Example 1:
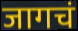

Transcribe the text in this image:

जागचं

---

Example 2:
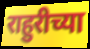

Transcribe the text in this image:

राहुरीच्या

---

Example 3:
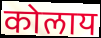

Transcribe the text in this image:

कोलाय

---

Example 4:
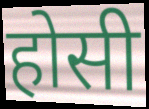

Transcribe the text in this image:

होसी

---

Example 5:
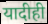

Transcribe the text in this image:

यादीही